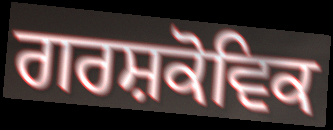
ਗਰਸ਼ਕੋਵਿਕ